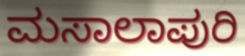
ಮಸಾಲಾಪುರಿ